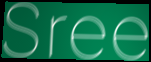
Sree